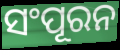
ସଂପୂରନ